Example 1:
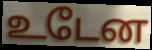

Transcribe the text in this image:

உடேன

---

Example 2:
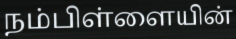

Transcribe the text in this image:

நம்பிள்ளையின்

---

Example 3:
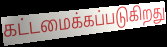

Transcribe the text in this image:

கட்டமைக்கப்படுகிறது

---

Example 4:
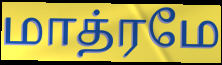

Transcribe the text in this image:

மாத்ரமே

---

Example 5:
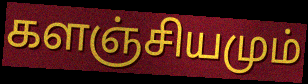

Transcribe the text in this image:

களஞ்சியமும்